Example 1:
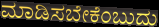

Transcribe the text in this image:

ಮಾಡಿಸಬೇಕೆಂಬುದು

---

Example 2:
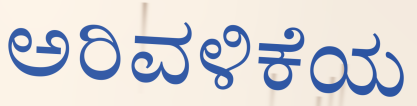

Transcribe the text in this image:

ಅರಿವಳಿಕೆಯ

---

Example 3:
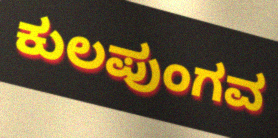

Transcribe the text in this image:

ಕುಲಪುಂಗವ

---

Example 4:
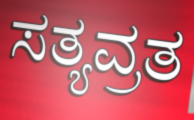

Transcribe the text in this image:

ಸತ್ಯವ್ರತ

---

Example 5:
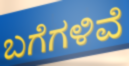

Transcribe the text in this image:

ಬಗೆಗಳಿವೆ